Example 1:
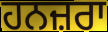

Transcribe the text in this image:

ਹਨਜ਼ਰਾ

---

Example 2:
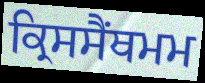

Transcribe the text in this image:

ਕ੍ਰਿਸਸੈਂਥਮਮ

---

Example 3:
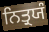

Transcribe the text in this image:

ਨਿਤ੍ਰਯੰ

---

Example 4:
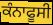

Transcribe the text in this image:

ਕੰਨਾਫੂਸੀ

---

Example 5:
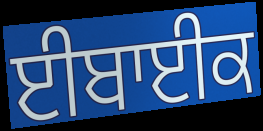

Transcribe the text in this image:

ਈਬਾਈਕ